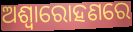
ଅଶ୍ୱାରୋହଣରେ